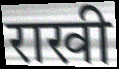
राखी